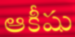
ఆకీషు